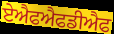
ਏਐਫਐਫਡੀਐਫ